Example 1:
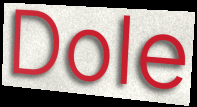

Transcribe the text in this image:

Dole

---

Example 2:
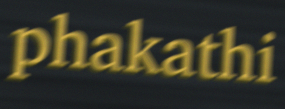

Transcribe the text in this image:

phakathi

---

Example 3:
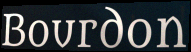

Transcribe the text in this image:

Bourdon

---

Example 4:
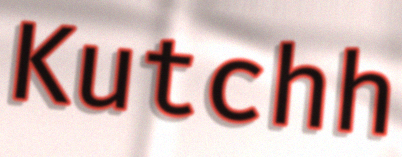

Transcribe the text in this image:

Kutchh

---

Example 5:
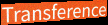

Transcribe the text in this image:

Transference